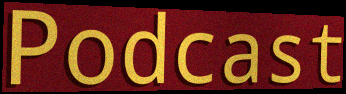
Podcast